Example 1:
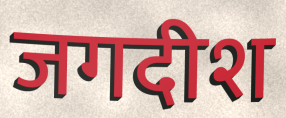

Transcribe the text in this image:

जगदीश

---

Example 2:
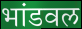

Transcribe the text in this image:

भांडवल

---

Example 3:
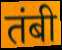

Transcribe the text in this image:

तंबी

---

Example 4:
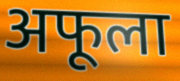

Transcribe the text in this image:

अफूला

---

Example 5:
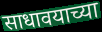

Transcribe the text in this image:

साधावयाच्या